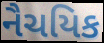
નૈચયિક